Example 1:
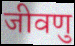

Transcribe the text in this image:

जीवणु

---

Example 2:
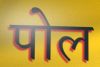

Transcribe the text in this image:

पोल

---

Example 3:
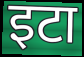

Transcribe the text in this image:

इटा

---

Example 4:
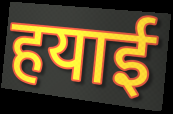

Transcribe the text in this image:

हयाई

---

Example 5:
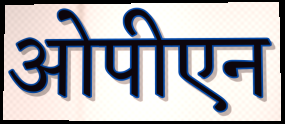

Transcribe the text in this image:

ओपीएन